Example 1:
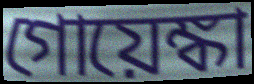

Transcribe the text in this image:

গোয়েঙ্কা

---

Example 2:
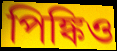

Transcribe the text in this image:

পিঙ্কিও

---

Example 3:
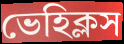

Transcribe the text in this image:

ভেহিক্লস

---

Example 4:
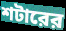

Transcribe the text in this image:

শটারের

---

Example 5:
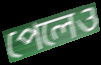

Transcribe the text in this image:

পেলেও